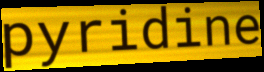
pyridine